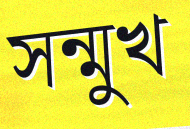
সন্মুখ